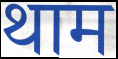
थाम